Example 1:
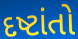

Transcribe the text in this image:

દષ્ટાંતો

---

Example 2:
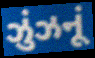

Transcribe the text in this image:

ઝુંઝનૂં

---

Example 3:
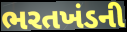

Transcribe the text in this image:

ભરતખંડની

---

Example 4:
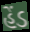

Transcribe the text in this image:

હેંડ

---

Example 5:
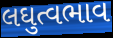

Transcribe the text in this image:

લઘુત્વભાવ